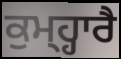
ਕੁਮ੍ਹ੍ਹਾਰੈ